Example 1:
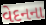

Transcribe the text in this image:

વેદનના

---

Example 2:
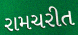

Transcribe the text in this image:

રામચરીત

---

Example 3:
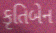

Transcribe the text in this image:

કૃતિબેન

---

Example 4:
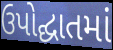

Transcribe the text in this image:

ઉપોદ્ઘાતમાં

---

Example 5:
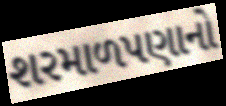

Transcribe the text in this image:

શરમાળપણાનો